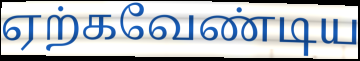
ஏற்கவேண்டிய